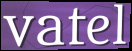
vatel